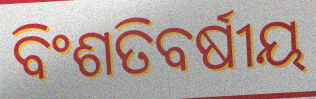
ବିଂଶତିବର୍ଷୀୟ